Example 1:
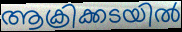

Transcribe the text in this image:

ആക്രിക്കടയിൽ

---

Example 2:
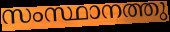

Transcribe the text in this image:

സംസ്ഥാനത്തു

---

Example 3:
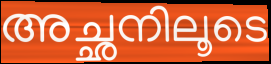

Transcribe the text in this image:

അച്ഛനിലൂടെ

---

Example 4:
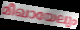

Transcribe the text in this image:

മീഖായേലും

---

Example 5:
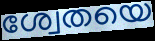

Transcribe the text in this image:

ശ്വേതയെ